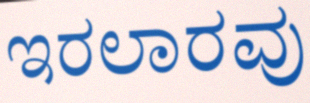
ಇರಲಾರವು